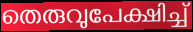
തെരുവുപേക്ഷിച്ച്